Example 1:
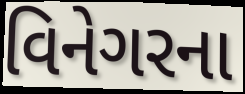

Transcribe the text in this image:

વિનેગરના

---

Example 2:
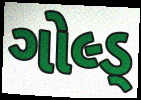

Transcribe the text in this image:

ગોલ્ડ્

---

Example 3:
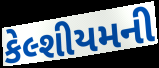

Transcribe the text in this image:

કેલ્શીયમની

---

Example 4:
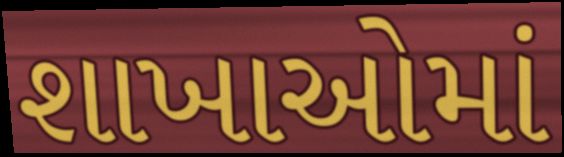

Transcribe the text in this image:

શાખાઓમાં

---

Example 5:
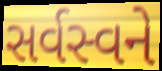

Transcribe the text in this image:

સર્વસ્વને